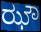
ಝೌ